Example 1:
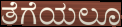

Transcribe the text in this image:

ತೆಗೆಯಲೂ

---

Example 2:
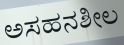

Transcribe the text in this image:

ಅಸಹನಶೀಲ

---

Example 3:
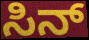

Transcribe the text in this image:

ಸಿನ್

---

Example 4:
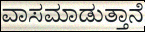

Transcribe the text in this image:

ವಾಸಮಾಡುತ್ತಾನೆ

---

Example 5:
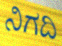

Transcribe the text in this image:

ನಿಗದಿ